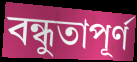
বন্ধুতাপূর্ণ